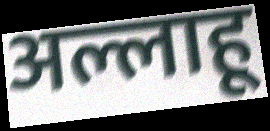
अल्लाहू